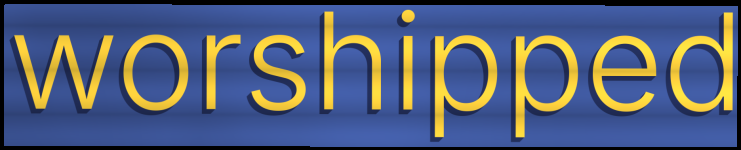
worshipped